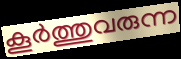
കൂർത്തുവരുന്ന